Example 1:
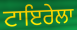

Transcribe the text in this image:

ਟਾਇਰੇਲਾ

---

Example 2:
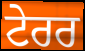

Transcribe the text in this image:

ਟੇਰਰ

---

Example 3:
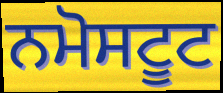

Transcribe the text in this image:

ਨਮੋਸਟੂਟ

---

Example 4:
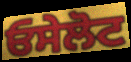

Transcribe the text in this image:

ਓਸੇਲੋਟ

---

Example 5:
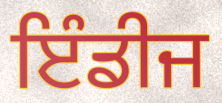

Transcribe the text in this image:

ਇੰਡੀਜ